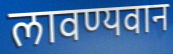
लावण्यवान